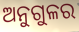
ଅନୁଗୁଳର